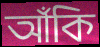
আঁকি